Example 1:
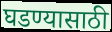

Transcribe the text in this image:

घडण्यासाठी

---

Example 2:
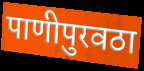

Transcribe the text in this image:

पाणीपुरवठा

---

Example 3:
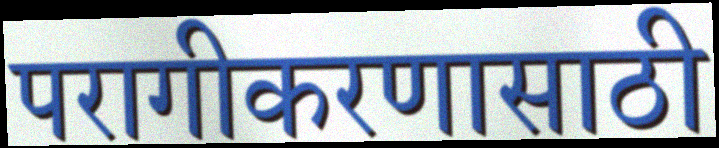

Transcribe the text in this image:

परागीकरणासाठी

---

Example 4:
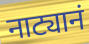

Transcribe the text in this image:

नाट्यानं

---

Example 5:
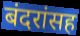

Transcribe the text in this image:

बंदरांसह